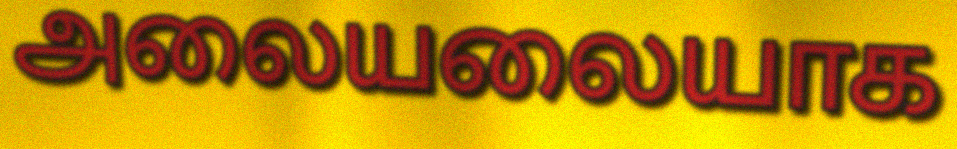
அலையலையாக